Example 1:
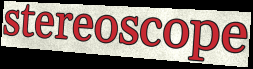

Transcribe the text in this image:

stereoscope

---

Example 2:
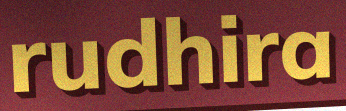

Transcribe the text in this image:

rudhira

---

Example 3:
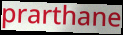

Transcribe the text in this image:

prarthane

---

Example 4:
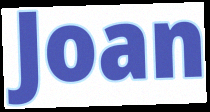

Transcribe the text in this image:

Joan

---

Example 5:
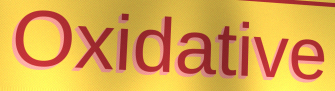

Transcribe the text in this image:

Oxidative